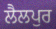
ਲੈਲਪੁਰ